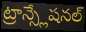
ట్రాన్స్లేషనల్